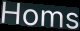
Homs